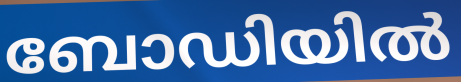
ബോഡിയിൽ